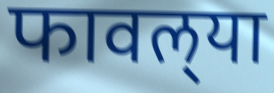
फावल्या